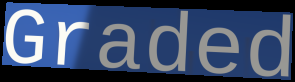
Graded